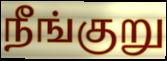
நீங்குறு